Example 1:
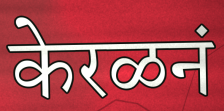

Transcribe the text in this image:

केरळनं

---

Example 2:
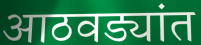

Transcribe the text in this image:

आठवड्यांत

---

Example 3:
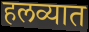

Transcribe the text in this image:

हलव्यात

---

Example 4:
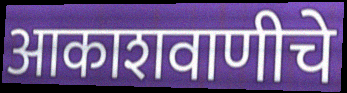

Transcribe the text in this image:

आकाशवाणीचे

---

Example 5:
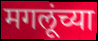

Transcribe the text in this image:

मगलूंच्या